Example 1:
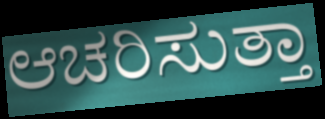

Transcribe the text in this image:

ಆಚರಿಸುತ್ತಾ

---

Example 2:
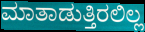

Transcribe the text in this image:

ಮಾತಾಡುತ್ತಿರಲಿಲ್ಲ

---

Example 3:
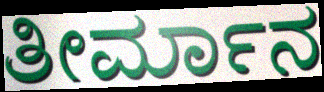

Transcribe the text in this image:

ತೀರ್ಮಾನ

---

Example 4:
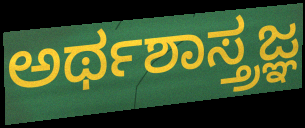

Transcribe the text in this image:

ಅರ್ಥಶಾಸ್ತ್ರಜ್ಞ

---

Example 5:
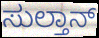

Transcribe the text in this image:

ಸುಲ್ತಾನ್